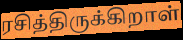
ரசித்திருக்கிறாள்